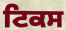
ਟਿਕਸ